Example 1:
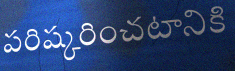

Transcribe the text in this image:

పరిష్కరించటానికి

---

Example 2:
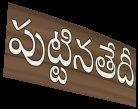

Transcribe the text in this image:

పుట్టినతేదీ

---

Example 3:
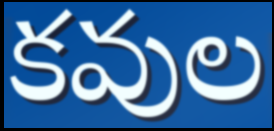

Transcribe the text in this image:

కవుల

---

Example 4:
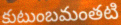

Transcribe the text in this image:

కుటుంబమంతటి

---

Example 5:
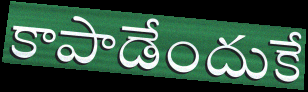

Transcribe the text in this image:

కాపాడేందుకే